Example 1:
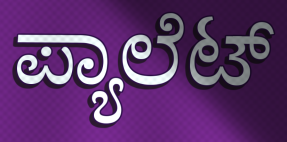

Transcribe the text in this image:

ಪ್ಯಾಲೆಟ್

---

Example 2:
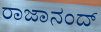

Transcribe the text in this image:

ರಾಜಾನಂದ್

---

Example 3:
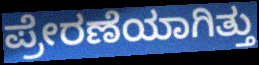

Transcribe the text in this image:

ಪ್ರೇರಣೆಯಾಗಿತ್ತು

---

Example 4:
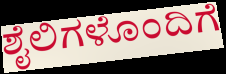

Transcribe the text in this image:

ಶೈಲಿಗಳೊಂದಿಗೆ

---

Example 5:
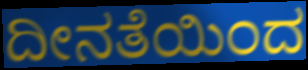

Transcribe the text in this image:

ದೀನತೆಯಿಂದ